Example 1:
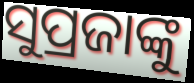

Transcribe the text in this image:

ସୁପ୍ରଜାଙ୍କୁ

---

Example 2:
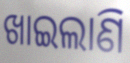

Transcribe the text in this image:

ଖାଇଲାଣି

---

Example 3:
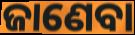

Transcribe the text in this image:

ଜାଣେବା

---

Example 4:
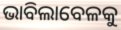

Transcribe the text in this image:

ଭାବିଲାବେଳକୁ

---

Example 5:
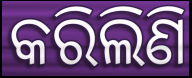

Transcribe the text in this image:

କରିଲିଣି